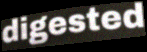
digested